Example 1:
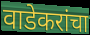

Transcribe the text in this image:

वाडेकरांचा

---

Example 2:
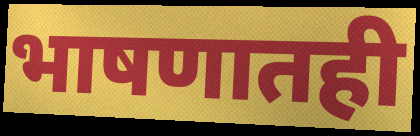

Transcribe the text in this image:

भाषणातही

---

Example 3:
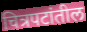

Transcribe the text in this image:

चित्रपटांतील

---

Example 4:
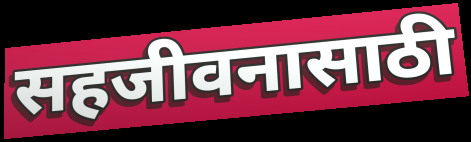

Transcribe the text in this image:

सहजीवनासाठी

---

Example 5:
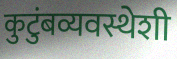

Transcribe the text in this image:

कुटुंबव्यवस्थेशी